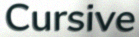
Cursive